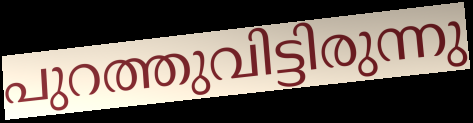
പുറത്തുവിട്ടിരുന്നു